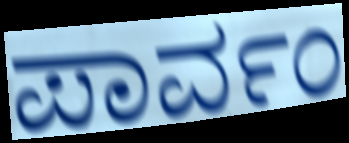
ಪಾರ್ವಂ